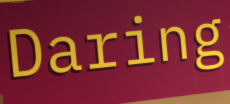
Daring